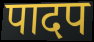
पादप